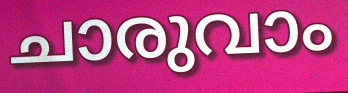
ചാരുവാം